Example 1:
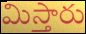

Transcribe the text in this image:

మిస్తారు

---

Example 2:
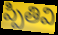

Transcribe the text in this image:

ప్పితివి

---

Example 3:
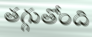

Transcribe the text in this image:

తగ్గుతోంది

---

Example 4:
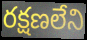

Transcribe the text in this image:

రక్షణలేని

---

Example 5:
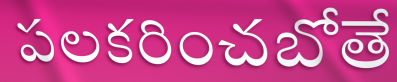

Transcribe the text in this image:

పలకరించబోతే